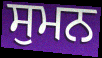
ਸੁਮਨ